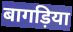
बागड़िया